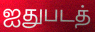
ஐதுபடத்